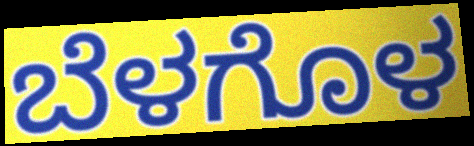
ಬೆಳಗೊಳ